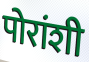
पोरांशी